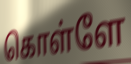
கொள்ளே